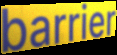
barrier